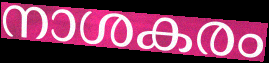
നാശകരം